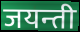
जयन्ती